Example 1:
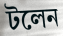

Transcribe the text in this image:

টলেন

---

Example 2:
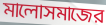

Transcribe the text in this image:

মালোসমাজের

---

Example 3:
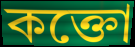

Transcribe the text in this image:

কক্তো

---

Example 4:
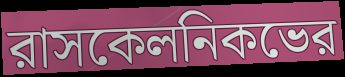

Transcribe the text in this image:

রাসকেলনিকভের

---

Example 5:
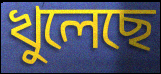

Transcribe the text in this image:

খুলেছে